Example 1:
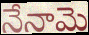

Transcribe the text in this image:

నేనామె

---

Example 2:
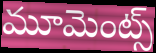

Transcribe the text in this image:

మూమెంట్స్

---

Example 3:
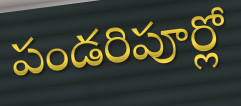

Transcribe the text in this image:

పండరిపూర్లో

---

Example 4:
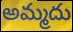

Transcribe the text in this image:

అమ్మదు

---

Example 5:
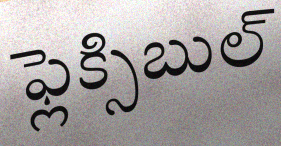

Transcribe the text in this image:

ఫ్లెక్సిబుల్